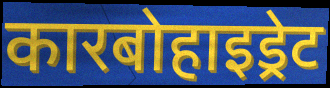
कारबोहाइड्रेट